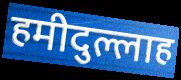
हमीदुल्लाह